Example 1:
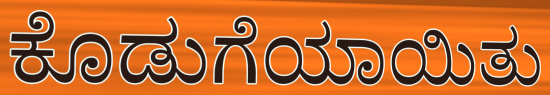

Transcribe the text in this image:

ಕೊಡುಗೆಯಾಯಿತು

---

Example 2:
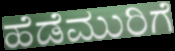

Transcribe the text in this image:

ಹೆಡೆಮುರಿಗೆ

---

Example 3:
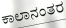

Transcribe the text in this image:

ಕಾಲಾನಂತರ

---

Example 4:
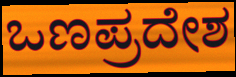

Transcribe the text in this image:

ಒಣಪ್ರದೇಶ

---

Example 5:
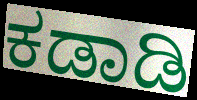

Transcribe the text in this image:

ಕಡಾಡಿ